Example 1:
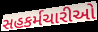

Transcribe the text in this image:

સહકર્મચારીઓ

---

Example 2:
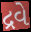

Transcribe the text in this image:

દ્રવે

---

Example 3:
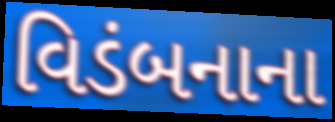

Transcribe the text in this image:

વિડંબનાના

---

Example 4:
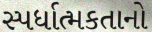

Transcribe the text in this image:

સ્પર્ધાત્મકતાનો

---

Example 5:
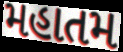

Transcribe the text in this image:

મહાતમ